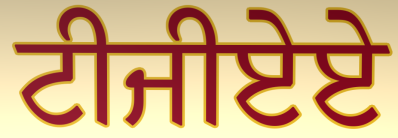
ਟੀਜੀਏਏ